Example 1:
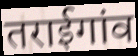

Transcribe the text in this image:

तराईगांव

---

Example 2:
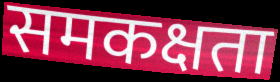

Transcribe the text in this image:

समकक्षता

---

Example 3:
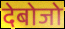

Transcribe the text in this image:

देबोजो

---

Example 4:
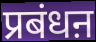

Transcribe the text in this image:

प्रबंधऩ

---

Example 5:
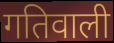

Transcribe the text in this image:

गतिवाली